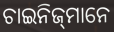
ଚାଇନିଜ୍‍ମାନେ